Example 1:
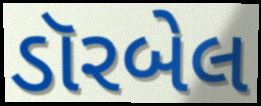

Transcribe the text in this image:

ડૉરબેલ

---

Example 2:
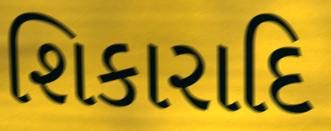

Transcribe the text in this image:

શિકારાદિ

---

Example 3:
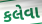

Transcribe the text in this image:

કલેવા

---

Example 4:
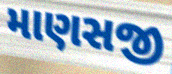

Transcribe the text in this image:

માણસજી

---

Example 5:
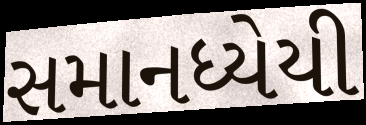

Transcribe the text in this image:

સમાનધ્યેયી